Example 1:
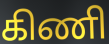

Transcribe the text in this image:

கிணி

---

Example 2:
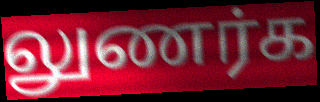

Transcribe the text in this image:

லுணர்க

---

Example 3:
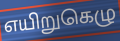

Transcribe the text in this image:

எயிறுகெழு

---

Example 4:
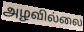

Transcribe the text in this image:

அழவில்லை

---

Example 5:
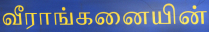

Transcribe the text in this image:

வீராங்கனையின்